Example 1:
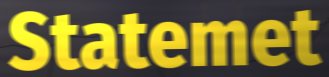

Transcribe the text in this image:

Statemet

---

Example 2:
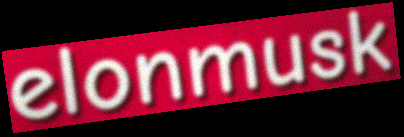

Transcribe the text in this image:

elonmusk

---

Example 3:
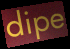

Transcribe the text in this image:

dipe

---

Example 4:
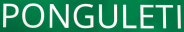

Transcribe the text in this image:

PONGULETI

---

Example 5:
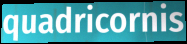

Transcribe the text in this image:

quadricornis